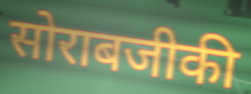
सोराबजीकी